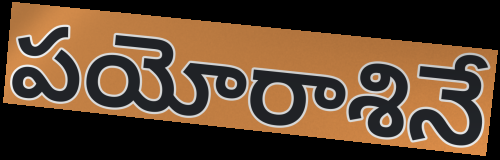
పయోరాశినే